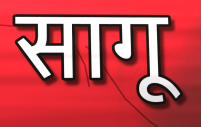
सागू